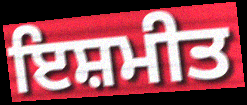
ਇਸ਼ਮੀਤ